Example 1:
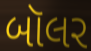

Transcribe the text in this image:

બૉલર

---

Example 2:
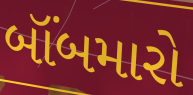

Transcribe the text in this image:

બૉંબમારો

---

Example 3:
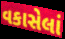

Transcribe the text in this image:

વકાસેલાં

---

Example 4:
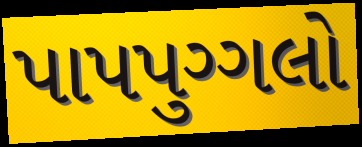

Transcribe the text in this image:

પાપપુગ્ગલો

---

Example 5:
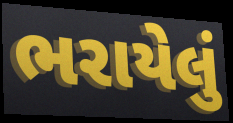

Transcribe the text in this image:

ભરાયેલું